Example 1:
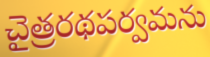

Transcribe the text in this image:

చైత్రరథపర్వమను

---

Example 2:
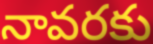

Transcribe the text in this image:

నావరకు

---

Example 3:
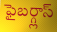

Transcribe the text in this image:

ఫైబర్గ్లాస్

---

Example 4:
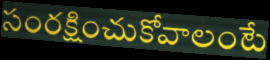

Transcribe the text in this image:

సంరక్షించుకోవాలంటే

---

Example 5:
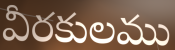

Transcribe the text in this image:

వీరకులము